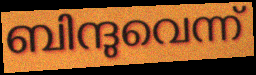
ബിന്ദുവെന്ന്